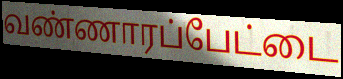
வண்ணாரப்பேட்டை